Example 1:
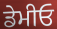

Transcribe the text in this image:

ਡੇਮੀਓ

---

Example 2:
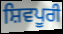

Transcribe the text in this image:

ਸ਼ਿਵਪੂਰੀ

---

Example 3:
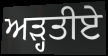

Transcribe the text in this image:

ਅੜ੍ਹਤੀਏ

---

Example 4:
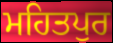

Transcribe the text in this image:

ਮਹਿਤਪੁਰ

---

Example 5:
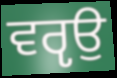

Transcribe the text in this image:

ਵਰੵਉ